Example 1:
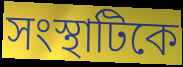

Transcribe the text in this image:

সংস্থাটিকে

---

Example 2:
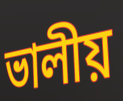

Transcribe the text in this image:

ভালীয়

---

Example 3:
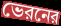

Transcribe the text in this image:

ভেরনের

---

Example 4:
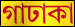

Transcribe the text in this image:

গাঢাকা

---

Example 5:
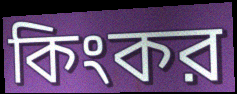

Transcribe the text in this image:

কিংকর